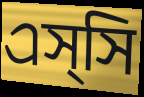
এস্‌সি